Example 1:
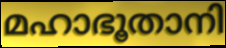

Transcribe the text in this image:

മഹാഭൂതാനി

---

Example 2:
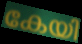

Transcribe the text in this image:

കേയി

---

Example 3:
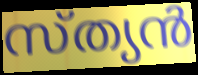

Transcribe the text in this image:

സ്‌ത്യൻ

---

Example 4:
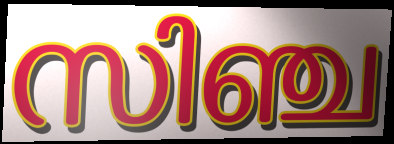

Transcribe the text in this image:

സിഞ്ച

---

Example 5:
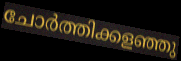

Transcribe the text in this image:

ചോർത്തിക്കളഞ്ഞു